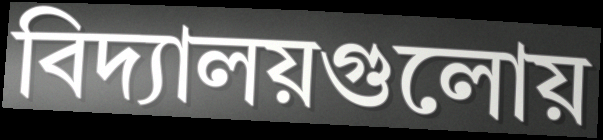
বিদ্যালয়গুলোয়